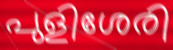
പുളിശേരി